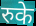
रुके